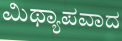
ಮಿಥ್ಯಾಪವಾದ